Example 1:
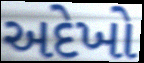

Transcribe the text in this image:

અદેખો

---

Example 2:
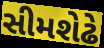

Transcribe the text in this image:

સીમશેઢે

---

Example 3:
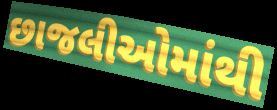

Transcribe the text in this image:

છાજલીઓમાંથી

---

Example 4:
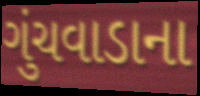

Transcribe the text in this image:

ગુંચવાડાના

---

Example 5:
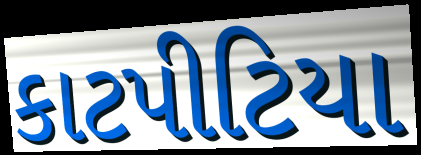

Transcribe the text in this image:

કાટપીટિયા